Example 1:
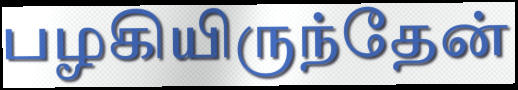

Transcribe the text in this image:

பழகியிருந்தேன்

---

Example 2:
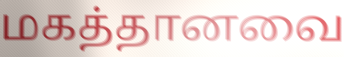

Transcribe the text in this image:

மகத்தானவை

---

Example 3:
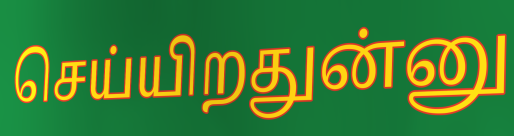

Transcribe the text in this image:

செய்யிறதுன்னு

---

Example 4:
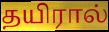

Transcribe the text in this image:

தயிரால்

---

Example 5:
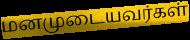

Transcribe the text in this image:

மனமுடையவர்கள்